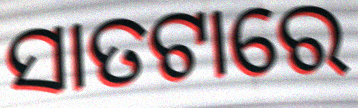
ସାତଟାରେ